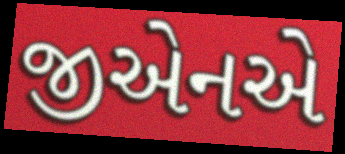
જીએનએ